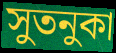
সুতনুকা